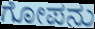
ಗೋಪನು